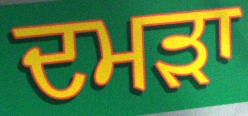
ਦਮੜਾ